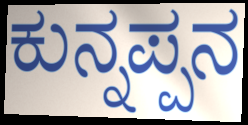
ಕುನ್ನಪ್ಪನ